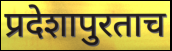
प्रदेशापुरताच